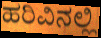
ಹರಿವಿನಲ್ಲಿ